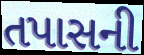
તપાસની